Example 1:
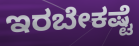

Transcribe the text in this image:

ಇರಬೇಕಷ್ಟೆ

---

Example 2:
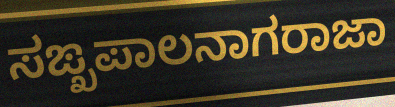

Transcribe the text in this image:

ಸಙ್ಖಪಾಲನಾಗರಾಜಾ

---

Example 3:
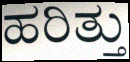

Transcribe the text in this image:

ಹರಿತ್ತು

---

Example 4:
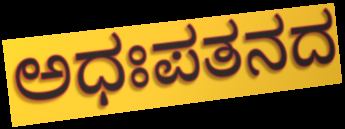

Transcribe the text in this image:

ಅಧಃಪತನದ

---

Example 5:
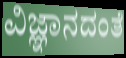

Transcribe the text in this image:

ವಿಜ್ಞಾನದಂತೆ